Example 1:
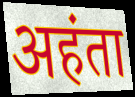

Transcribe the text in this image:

अहंता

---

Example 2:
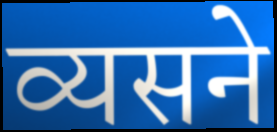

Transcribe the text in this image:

व्यसने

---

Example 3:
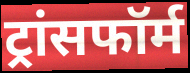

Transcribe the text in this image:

ट्रांसफॉर्म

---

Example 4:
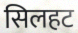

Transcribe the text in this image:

सिलहट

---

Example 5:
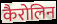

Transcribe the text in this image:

कैरोलिन